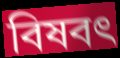
বিষবৎ